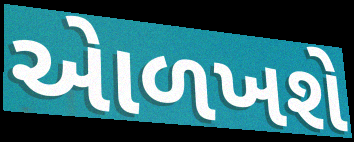
એાળખશે